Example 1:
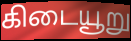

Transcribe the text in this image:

கிடையூறு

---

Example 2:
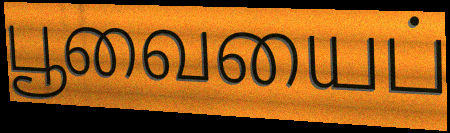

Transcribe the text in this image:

பூவையைப்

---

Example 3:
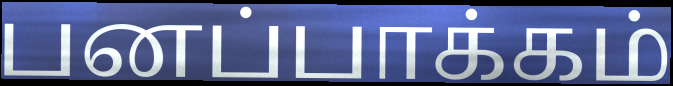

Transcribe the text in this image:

பனப்பாக்கம்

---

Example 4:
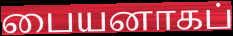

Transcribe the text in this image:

பையனாகப்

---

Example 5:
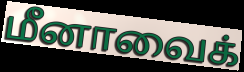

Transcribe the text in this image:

மீனாவைக்